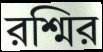
রশ্মির